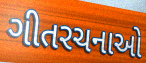
ગીતરચનાઓ